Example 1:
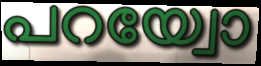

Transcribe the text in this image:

പറയ്വോ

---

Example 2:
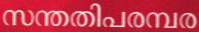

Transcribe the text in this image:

സന്തതിപരമ്പര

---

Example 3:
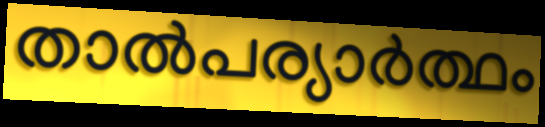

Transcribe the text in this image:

താൽപര്യാർത്ഥം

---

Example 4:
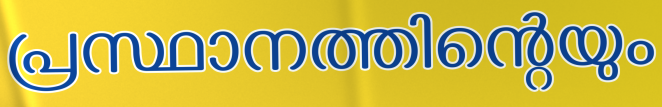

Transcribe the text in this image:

പ്രസ്ഥാനത്തിന്റെയും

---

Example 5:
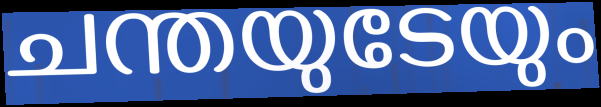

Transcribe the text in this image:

ചന്തയുടേയും